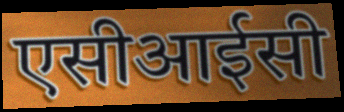
एसीआईसी